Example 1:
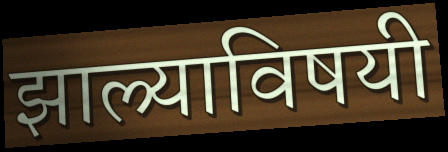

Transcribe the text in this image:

झाल्याविषयी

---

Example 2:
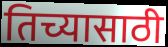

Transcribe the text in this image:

तिच्यासाठी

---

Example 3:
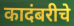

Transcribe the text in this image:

कादंबरीचे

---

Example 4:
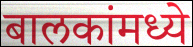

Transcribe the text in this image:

बालकांमध्ये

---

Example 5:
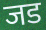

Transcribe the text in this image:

जड